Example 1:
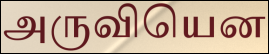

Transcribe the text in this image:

அருவியென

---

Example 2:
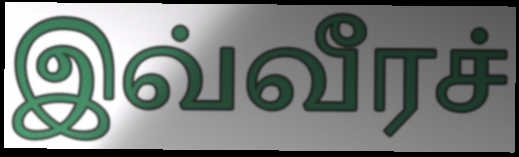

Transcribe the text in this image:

இவ்வீரச்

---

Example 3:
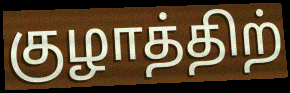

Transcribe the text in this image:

குழாத்திற்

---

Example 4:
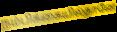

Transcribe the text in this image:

நம்பிக்கையில்தானே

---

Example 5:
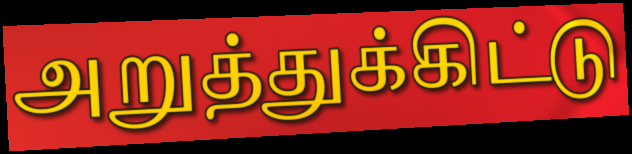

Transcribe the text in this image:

அறுத்துக்கிட்டு